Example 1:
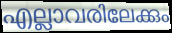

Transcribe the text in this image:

എല്ലാവരിലേക്കും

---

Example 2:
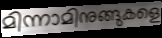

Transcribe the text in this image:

മിന്നാമിനുങ്ങുകളെ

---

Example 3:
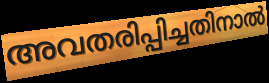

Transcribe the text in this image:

അവതരിപ്പിച്ചതിനാൽ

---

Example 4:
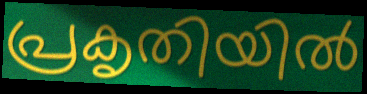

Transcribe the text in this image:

പ്രകൃതിയിൽ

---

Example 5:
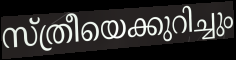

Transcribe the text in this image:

സ്ത്രീയെക്കുറിച്ചും